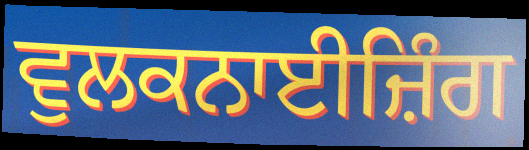
ਵੁਲਕਨਾਈਜ਼ਿੰਗ